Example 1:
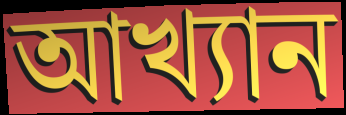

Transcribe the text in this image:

আখ্যান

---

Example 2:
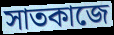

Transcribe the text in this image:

সাতকাজে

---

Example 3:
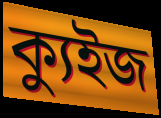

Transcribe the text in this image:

ক্যুইজ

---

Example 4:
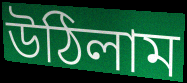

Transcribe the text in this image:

উঠিলাম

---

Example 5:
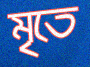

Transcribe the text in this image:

মৃতে